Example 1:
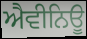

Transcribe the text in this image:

ਐਵੀਨਿਊ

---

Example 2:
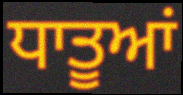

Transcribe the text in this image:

ਧਾਤੂਆਂ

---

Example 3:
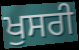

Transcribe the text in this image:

ਖੁਸਰੀ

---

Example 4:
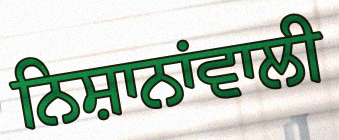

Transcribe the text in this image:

ਨਿਸ਼ਾਨਾਂਵਾਲੀ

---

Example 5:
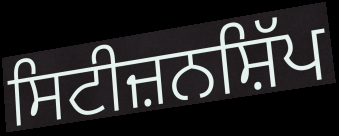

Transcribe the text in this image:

ਸਿਟੀਜ਼ਨਸ਼ਿੱਪ